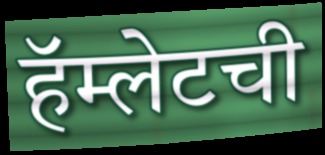
हॅम्लेटची